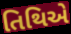
તિથિએ